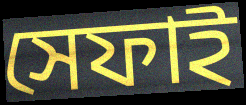
সেফাই